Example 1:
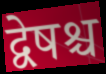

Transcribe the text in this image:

द्वेषश्च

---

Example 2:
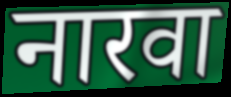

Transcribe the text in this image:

नारवा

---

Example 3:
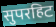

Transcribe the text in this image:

सुपरहिट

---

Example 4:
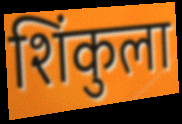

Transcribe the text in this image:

शिंकुला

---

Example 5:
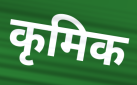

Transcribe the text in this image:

कृमिक